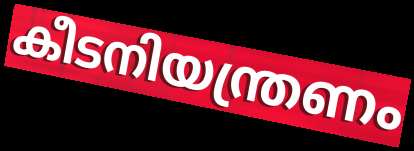
കീടനിയന്ത്രണം